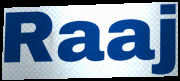
Raaj